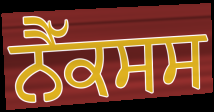
ਨੈੱਕਸਸ